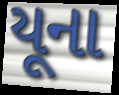
યૂના